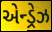
એન્ડ્રેઝ